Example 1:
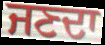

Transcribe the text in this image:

ਜਣਦਾ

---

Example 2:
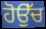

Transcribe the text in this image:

ਹੋਉੱਚ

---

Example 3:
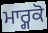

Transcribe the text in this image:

ਮਾਰ੍ਗਕੋ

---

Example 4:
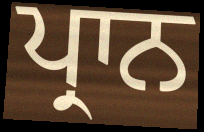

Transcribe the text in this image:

ਪ੍ਰਾਨ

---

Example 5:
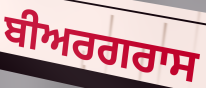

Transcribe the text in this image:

ਬੀਅਰਗਰਾਸ